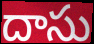
దాసు